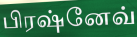
பிரஷ்னேவ்